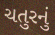
ચતુરનું